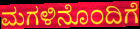
ಮಗಳಿನೊಂದಿಗೆ